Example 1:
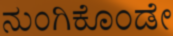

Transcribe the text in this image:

ನುಂಗಿಕೊಂಡೇ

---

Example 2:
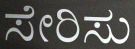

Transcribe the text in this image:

ಸೇರಿಸು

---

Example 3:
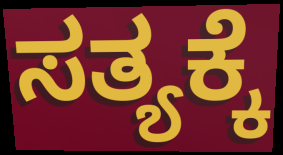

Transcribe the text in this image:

ಸತ್ಯಕ್ಕೆ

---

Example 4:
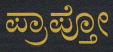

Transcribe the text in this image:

ಪ್ರಾಪ್ತೋ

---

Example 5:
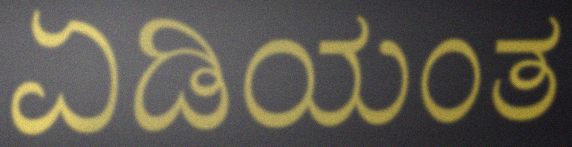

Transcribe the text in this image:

ಏಡಿಯಂತ